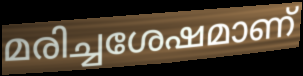
മരിച്ചശേഷമാണ്